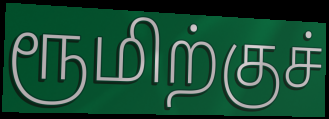
ரூமிற்குச்